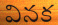
వినక